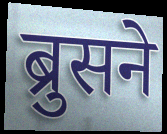
ब्रुसने